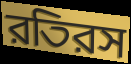
রতিরস